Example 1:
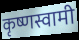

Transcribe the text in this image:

कृष्णस्वामी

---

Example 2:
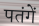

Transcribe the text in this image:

पतंगें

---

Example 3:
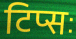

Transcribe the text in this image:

टिप्सः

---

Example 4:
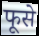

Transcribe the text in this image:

फूसे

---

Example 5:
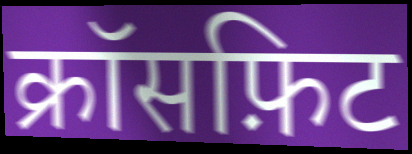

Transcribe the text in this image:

क्रॉसफ़िट